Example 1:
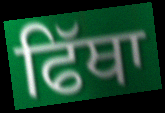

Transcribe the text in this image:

ਫਿੱਥਾ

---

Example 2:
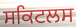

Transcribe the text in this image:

ਸਕਿਟਲਸ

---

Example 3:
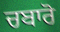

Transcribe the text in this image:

ਚਬਾਰੋ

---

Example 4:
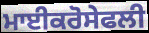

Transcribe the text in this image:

ਮਾਈਕਰੋਸੇਫਲੀ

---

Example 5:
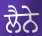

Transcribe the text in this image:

ਲੈਨੇ